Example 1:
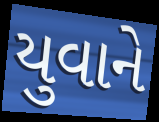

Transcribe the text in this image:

યુવાને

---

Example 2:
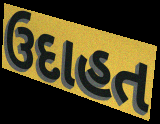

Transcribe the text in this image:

ઉદાહત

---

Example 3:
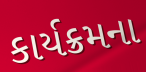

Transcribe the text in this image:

કાર્યક્રમના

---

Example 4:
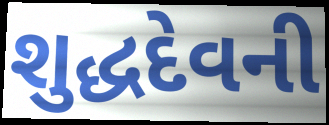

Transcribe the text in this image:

શુદ્ધદેવની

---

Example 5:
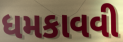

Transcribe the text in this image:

ધમકાવવી